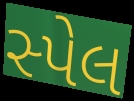
સ્પેલ